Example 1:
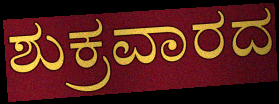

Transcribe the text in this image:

ಶುಕ್ರವಾರದ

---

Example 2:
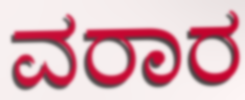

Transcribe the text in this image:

ವರಾರ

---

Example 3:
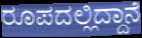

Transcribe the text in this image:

ರೂಪದಲ್ಲಿದ್ದಾನೆ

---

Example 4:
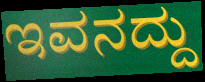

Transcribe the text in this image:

ಇವನದ್ದು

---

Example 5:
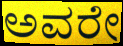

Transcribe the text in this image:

ಅವರೇ